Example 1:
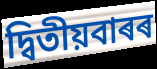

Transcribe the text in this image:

দ্বিতীয়বাৰৰ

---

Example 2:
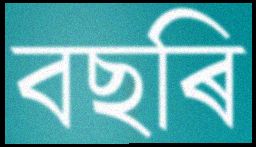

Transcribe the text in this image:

বছৰি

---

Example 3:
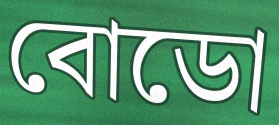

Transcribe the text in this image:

বোডো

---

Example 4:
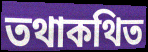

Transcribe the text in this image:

তথাকথিত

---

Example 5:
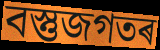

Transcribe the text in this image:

বস্তুজগতৰ